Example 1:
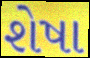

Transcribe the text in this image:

શેષા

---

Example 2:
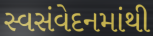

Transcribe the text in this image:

સ્વસંવેદનમાંથી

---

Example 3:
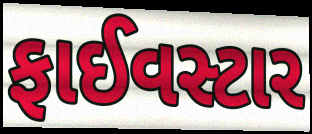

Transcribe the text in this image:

ફાઈવસ્ટાર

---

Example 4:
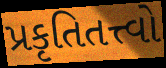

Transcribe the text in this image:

પ્રકૃતિતત્ત્વો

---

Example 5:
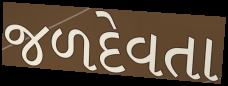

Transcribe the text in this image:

જળદેવતા